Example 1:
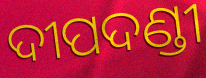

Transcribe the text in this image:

ଦୀପଦଣ୍ଡୀ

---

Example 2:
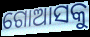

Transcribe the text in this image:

ଗୋଆସକୁ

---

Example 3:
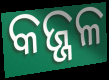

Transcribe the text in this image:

କଜ୍ଜଳ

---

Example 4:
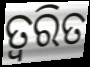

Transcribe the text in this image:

ତ୍ଵରିତ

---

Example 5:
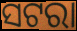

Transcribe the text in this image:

ସଟରା